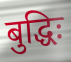
बुद्धिः